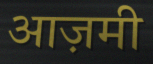
आज़मी